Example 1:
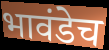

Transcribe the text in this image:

भावंडेच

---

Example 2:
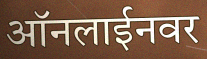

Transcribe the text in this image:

ऑनलाईनवर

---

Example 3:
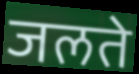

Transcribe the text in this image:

जलते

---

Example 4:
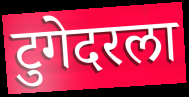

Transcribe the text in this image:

टुगेदरला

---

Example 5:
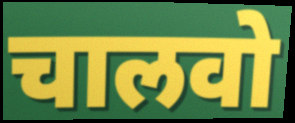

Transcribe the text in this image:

चालवो